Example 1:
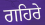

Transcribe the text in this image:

ਗਹਿਰੇ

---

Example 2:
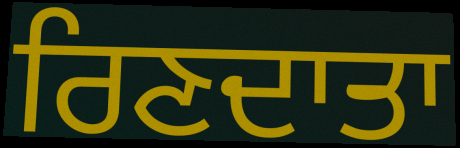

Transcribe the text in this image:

ਰਿਣਦਾਤਾ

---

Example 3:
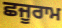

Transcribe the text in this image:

ਛਜੂਰਾਮ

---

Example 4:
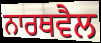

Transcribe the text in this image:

ਨਾਰਥਵੈਲ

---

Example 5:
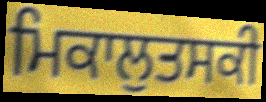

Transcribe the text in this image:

ਮਿਕਾਲੁਤਸਕੀ